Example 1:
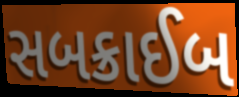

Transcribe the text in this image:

સબક્રાઈબ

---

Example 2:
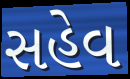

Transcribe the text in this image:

સહેવ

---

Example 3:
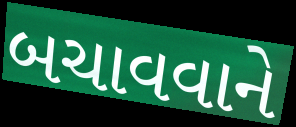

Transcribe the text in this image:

બચાવવાને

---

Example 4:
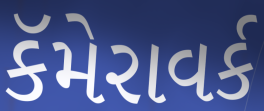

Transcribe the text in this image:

કૅમેરાવર્ક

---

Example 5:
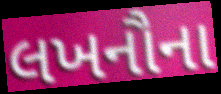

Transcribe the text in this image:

લખનૌના